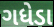
ગધેડા